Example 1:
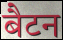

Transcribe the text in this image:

बैटन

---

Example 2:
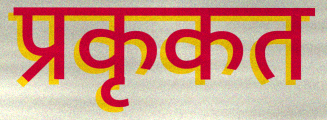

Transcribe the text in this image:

प्रकृकत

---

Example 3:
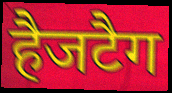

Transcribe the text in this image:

हैजटैग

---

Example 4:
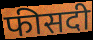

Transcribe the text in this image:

फीसदी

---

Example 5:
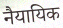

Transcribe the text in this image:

नैयायिक